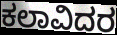
ಕಲಾವಿದರ